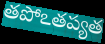
తపోఽతప్యత